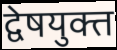
द्वेषयुक्त